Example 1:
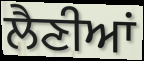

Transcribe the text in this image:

ਲੈਣੀਆਂ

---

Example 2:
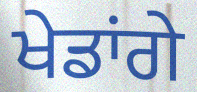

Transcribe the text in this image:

ਖੇਡਾਂਗੇ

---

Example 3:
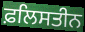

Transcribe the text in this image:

ਫ਼ਲਿਸਤੀਨ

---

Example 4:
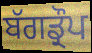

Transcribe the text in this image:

ਬੱਗਡ੍ਰੌਪ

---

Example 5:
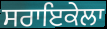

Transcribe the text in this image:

ਸਰਾਇਕੇਲਾ